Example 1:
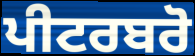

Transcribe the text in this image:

ਪੀਟਰਬਰੋ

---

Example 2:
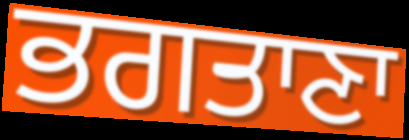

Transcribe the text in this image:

ਭਗਤਾਣਾ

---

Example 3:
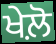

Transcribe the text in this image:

ਖੇਲ਼ੋ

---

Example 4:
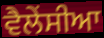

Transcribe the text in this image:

ਵੈਲੇਂਸੀਆ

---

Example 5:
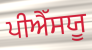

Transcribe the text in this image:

ਪੀਐੱਸਯੂ